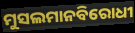
ମୁସଲମାନବିରୋଧୀ